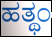
ಹತ್ಥಂ